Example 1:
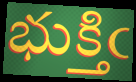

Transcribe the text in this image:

భుక్తిఁ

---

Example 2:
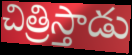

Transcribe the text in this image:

చిత్రిస్తాడు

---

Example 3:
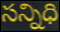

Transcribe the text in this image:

సన్నిధి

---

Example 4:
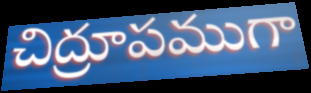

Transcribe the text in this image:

చిద్రూపముగా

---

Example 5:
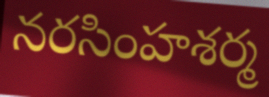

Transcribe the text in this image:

నరసింహశర్మ